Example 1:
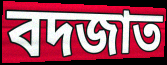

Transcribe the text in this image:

বদজাত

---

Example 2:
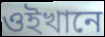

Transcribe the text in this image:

ওইখানে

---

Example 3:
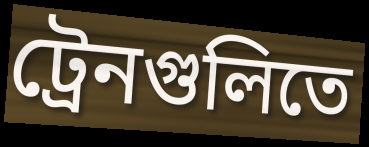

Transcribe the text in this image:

ট্রেনগুলিতে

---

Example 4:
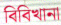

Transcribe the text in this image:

বিবিখানা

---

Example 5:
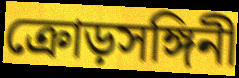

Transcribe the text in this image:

ক্রোড়সঙ্গিনী